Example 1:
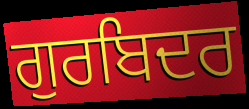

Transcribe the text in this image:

ਗੁਰਬਿਦਰ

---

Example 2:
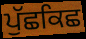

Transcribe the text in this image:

ਪੁੱਛਕਿਛ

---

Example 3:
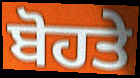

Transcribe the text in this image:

ਬੋਹਤੇ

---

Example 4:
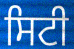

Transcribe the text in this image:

ਸਿਟੀ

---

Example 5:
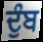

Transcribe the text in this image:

ਦੁੰਬ